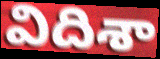
విదిశా